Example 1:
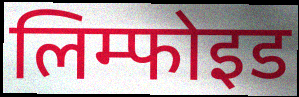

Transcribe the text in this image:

लिम्फोइड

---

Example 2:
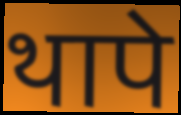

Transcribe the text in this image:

थापे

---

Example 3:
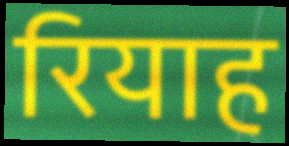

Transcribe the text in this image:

रियाह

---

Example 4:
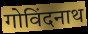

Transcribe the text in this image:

गोविंदनाथ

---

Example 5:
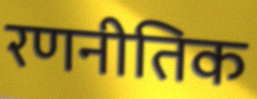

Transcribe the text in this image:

रणनीतिक